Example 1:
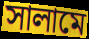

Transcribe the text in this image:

সালামে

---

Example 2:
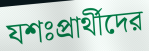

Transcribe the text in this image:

যশঃপ্রার্থীদের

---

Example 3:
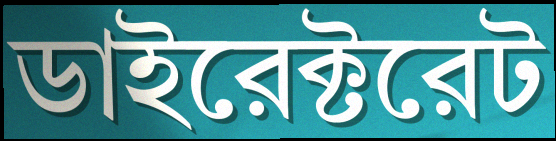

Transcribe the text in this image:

ডাইরেক্টরেট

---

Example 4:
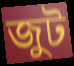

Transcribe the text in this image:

জুট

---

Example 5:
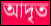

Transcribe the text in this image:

আদৃত